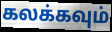
கலக்கவும்